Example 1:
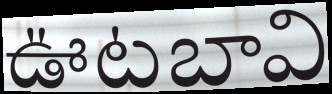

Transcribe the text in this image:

ఊటబావి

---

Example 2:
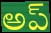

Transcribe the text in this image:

అప్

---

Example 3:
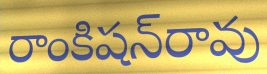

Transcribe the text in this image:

రాంకిషన్‌రావు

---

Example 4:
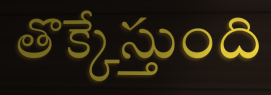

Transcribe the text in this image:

తొక్కేస్తుంది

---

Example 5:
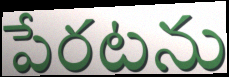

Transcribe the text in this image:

పేరటను